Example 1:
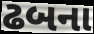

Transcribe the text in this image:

ઢબના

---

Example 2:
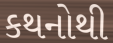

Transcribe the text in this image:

કથનોથી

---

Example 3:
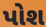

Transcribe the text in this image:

પોશ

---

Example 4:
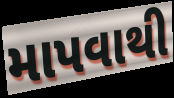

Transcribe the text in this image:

માપવાથી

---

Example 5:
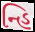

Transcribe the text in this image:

ન્હિ